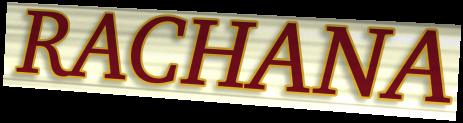
RACHANA